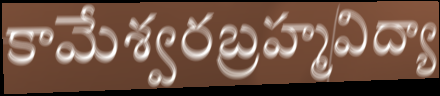
కామేశ్వరబ్రహ్మవిద్యా